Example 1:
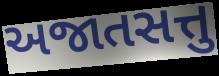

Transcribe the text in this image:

અજાતસત્તુ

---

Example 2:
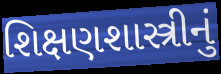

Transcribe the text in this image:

શિક્ષણશાસ્ત્રીનું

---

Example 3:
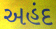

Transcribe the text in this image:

અહંદ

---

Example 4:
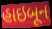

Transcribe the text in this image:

હાઇબૂન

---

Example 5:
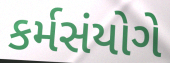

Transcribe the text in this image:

કર્મસંયોગે